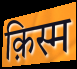
क़िस्म